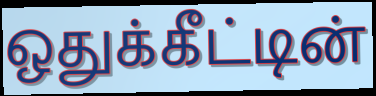
ஒதுக்கீட்டின்